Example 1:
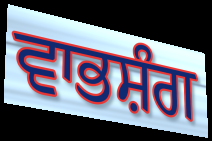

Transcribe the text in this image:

ਵਾਭਸ਼ੰਗ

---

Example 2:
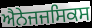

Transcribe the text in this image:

ਐਨੇਜਜਸਿਕਸ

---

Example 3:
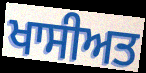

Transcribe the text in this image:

ਖਾਸੀਅਤ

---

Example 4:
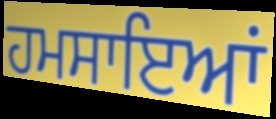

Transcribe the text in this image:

ਹਮਸਾਇਆਂ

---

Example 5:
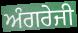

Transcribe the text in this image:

ਅੰਗਰੇਜੀ